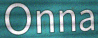
Onna